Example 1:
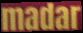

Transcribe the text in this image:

madar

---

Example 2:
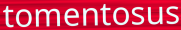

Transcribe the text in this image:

tomentosus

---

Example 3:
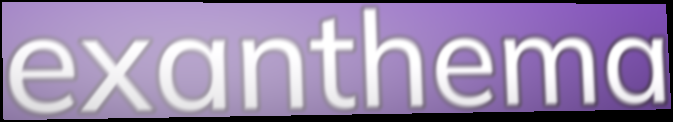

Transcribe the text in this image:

exanthema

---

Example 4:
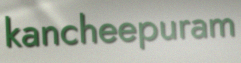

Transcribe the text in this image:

kancheepuram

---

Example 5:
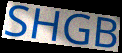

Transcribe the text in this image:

SHGB